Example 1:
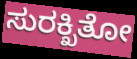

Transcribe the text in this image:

ಸುರಕ್ಖಿತೋ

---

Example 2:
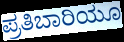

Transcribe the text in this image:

ಪ್ರತಿಬಾರಿಯೂ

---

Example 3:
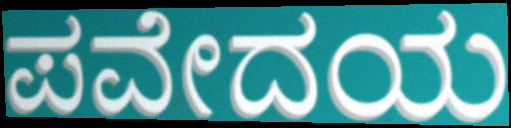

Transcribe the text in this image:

ಪವೇದಯ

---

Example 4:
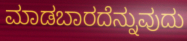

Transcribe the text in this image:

ಮಾಡಬಾರದೆನ್ನುವುದು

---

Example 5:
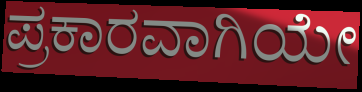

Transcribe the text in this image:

ಪ್ರಕಾರವಾಗಿಯೇ